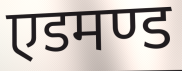
एडमण्ड